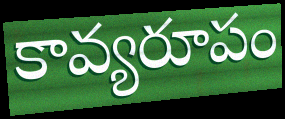
కావ్యరూపం